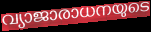
വ്യാജാരാധനയുടെ